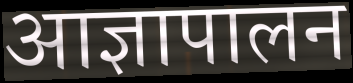
आज्ञापालन